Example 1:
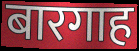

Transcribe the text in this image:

बारगाह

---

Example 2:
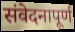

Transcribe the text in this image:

संवेदनापूर्ण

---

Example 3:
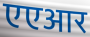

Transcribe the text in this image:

एएआर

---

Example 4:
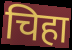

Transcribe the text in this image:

चिहा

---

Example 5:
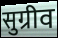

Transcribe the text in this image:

सुग्रीव